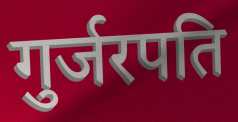
गुर्जरपति